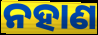
ନହାଣ